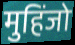
मुहिंजो